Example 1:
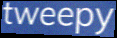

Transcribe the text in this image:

tweepy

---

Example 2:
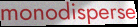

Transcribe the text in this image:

monodisperse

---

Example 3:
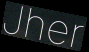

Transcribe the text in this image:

Jher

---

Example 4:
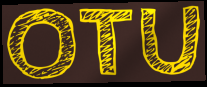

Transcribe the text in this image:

OTU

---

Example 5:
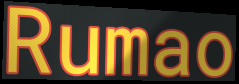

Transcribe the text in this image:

Rumao